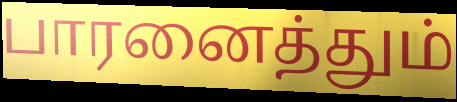
பாரனைத்தும்